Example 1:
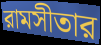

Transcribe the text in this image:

রামসীতার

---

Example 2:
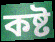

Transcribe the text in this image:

কষ্ট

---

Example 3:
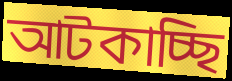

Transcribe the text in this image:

আটকাচ্ছি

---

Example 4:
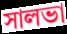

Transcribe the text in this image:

সালভা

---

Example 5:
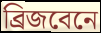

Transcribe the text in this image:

ব্রিজবেনে